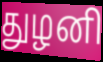
துழனி